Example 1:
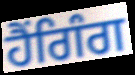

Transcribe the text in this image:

ਹੈਂਗਿੰਗ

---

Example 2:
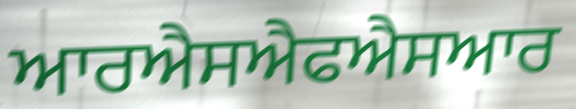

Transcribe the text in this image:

ਆਰਐਸਐਫਐਸਆਰ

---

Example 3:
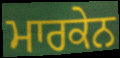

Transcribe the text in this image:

ਮਾਰਕੇਨ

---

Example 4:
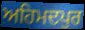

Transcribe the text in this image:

ਅਹਿਮਦਪੁਰ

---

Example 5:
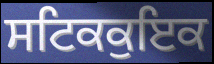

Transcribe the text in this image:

ਸਟਿਕਕੁਇਕ